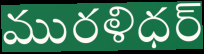
మురళిధర్